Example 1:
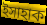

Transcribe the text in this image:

ইসাহাক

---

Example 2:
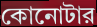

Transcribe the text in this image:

কোনোটার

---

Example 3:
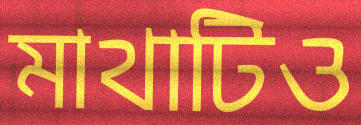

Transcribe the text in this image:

মাথাটিও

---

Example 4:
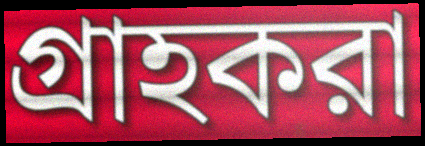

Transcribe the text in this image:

গ্রাহকরা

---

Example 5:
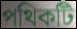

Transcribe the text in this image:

পথিকটি